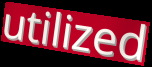
utilized